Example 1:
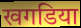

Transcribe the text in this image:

खगडिया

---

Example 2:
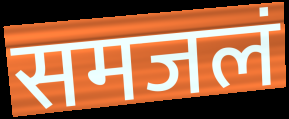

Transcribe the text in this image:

समजलं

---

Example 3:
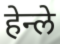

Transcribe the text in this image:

हेन्ले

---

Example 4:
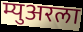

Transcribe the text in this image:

म्युअरला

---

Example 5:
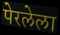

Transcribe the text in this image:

पेरलेला